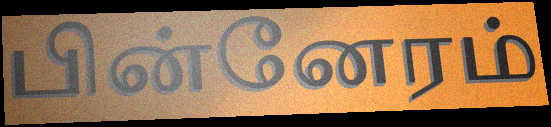
பின்னேரம்